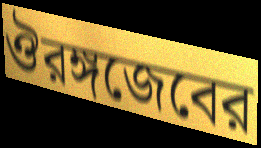
ঔরঙ্গজেবের